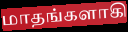
மாதங்களாகி